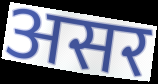
असर